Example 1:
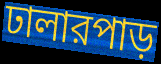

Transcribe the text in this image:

ঢালারপাড়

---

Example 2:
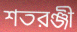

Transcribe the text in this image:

শতরঞ্জী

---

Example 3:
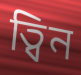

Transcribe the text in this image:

ত্বিন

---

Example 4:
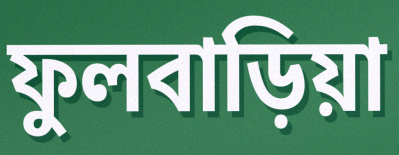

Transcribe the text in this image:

ফুলবাড়িয়া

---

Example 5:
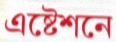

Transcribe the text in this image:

এষ্টেশনে